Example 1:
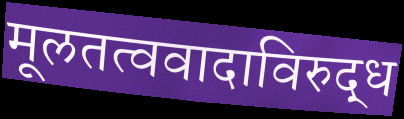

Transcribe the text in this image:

मूलतत्ववादाविरुद्ध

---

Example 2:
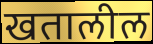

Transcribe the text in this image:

खतालील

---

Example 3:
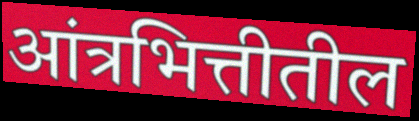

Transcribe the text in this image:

आंत्रभित्तीतील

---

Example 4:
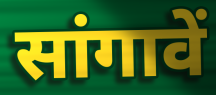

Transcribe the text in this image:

सांगावें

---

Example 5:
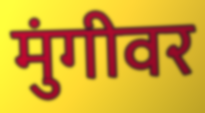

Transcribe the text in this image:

मुंगीवर